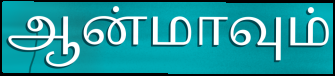
ஆன்மாவும்